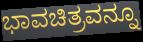
ಭಾವಚಿತ್ರವನ್ನೂ